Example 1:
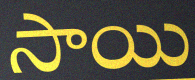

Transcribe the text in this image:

సాయి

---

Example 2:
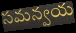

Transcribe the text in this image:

సమన్వయ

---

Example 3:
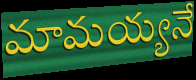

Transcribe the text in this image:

మామయ్యనే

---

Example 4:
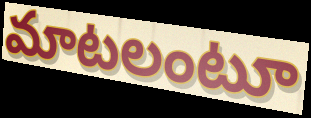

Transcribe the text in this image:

మాటలంటూ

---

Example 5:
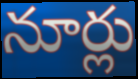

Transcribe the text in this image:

నూర్లు